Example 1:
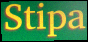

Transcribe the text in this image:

Stipa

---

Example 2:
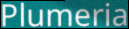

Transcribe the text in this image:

Plumeria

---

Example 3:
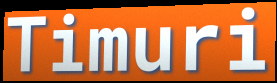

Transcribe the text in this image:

Timuri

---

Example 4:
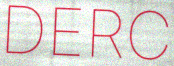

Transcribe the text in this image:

DERC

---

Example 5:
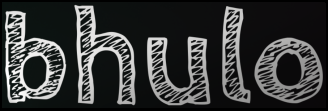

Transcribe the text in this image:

bhulo